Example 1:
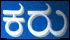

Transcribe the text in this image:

ಕರು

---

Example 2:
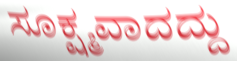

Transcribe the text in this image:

ಸೂಕ್ಷ್ಮವಾದದ್ದು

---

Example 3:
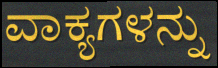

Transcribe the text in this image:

ವಾಕ್ಯಗಳನ್ನು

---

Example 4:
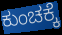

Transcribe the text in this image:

ಕುಂಚಕ್ಕೆ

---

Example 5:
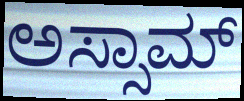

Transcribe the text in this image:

ಅಸ್ಸಾಮ್